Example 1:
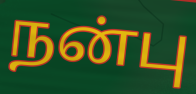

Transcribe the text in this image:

நன்பு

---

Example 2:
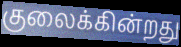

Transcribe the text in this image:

குலைக்கின்றது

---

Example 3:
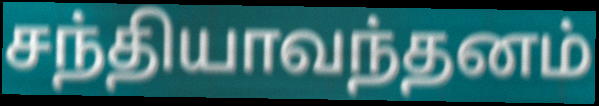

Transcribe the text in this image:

சந்தியாவந்தனம்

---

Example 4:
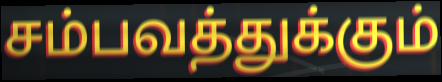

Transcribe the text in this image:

சம்பவத்துக்கும்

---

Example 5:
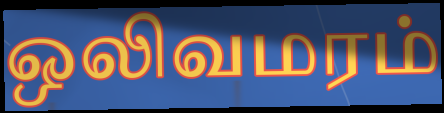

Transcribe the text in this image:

ஒலிவமரம்